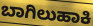
ಬಾಗಿಲುಹಾಕಿ